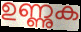
ഉണ്ണുക